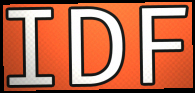
IDF